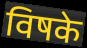
विषके